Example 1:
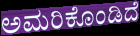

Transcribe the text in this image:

ಅಮರಿಕೊಂಡಿದೆ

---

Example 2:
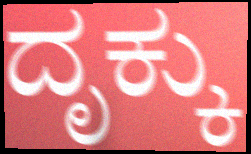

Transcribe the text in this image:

ದೃಕ್ಕು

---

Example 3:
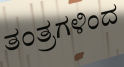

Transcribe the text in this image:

ತಂತ್ರಗಳಿಂದ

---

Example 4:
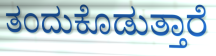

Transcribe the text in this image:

ತಂದುಕೊಡುತ್ತಾರೆ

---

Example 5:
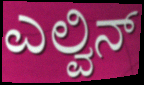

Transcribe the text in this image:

ಎಲ್ವಿನ್